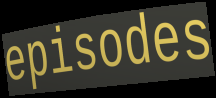
episodes